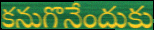
కనుగొనేందుకు